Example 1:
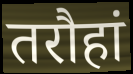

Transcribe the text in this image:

तरौहां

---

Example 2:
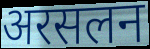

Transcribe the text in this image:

अरसलन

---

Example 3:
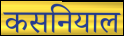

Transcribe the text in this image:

कसनियाल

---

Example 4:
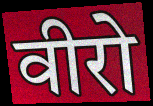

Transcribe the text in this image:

वीरो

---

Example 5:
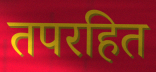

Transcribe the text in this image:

तपरहित